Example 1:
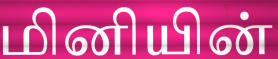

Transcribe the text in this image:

மினியின்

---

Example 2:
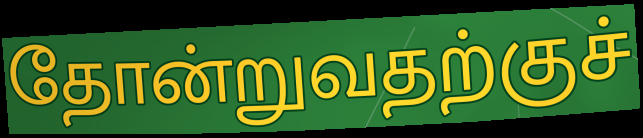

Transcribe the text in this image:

தோன்றுவதற்குச்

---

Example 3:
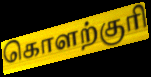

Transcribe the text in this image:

கொளற்குரி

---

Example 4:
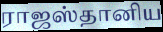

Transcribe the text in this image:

ராஜஸ்தானிய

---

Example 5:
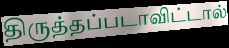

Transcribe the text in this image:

திருத்தப்படாவிட்டால்